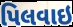
પિલવાઇ